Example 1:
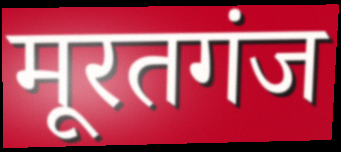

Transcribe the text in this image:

मूरतगंज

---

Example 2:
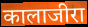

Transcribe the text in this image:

कालाजीरा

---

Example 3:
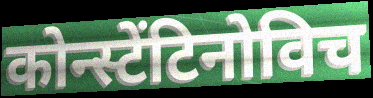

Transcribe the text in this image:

कोन्स्टेंटिनोविच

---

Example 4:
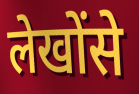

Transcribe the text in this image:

लेखोंसे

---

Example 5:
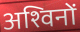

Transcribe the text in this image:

अश्विनों